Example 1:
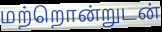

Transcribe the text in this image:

மற்றொன்றுடன்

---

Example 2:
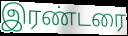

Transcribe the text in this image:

இரண்டரை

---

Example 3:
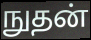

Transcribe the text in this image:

நுதன்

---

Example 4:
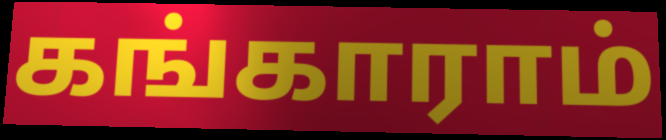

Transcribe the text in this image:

கங்காராம்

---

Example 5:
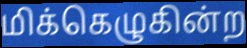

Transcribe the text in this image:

மிக்கெழுகின்ற